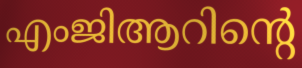
എംജിആറിന്റെ